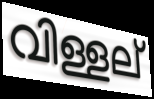
വിള്ളല്